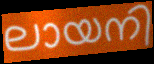
ലായനി